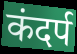
कंदर्प